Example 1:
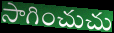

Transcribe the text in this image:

సాగించుచు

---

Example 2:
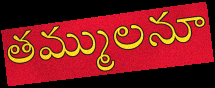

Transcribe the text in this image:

తమ్ములనూ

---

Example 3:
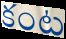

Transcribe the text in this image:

కంట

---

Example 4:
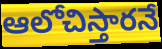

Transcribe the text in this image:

ఆలోచిస్తారనే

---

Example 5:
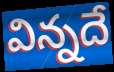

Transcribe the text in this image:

విన్నదే